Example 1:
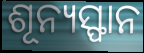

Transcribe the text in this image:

ଶୂନ୍ୟସ୍ଫାନ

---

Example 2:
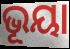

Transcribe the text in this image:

ଭୂୟା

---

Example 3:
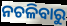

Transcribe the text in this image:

ନଚଳିବାରୁ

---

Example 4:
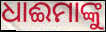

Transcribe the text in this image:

ଧାଈମାଙ୍କୁ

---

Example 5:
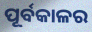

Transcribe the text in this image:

ପୂର୍ବକାଳର